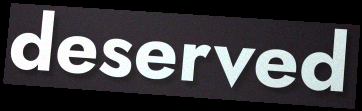
deserved